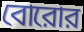
বোরোর